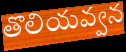
తొలియవ్వన